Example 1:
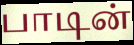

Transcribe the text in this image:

பாடின்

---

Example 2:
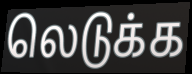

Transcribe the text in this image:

லெடுக்க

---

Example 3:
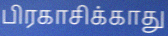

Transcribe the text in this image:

பிரகாசிக்காது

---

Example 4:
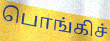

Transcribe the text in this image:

பொங்கிச்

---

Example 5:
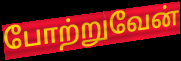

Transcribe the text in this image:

போற்றுவேன்